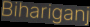
Bihariganj